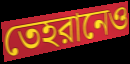
তেহরানেও